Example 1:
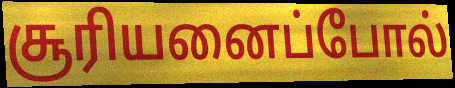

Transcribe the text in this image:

சூரியனைப்போல்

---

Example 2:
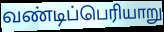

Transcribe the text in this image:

வண்டிப்பெரியாறு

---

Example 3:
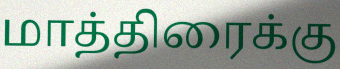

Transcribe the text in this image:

மாத்திரைக்கு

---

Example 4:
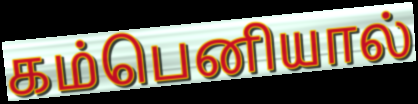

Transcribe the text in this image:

கம்பெனியால்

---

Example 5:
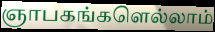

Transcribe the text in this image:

ஞாபகங்களெல்லாம்